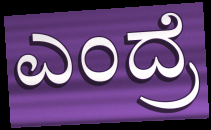
ಎಂದ್ರೆ